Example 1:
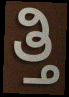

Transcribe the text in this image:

ತ್ತಿ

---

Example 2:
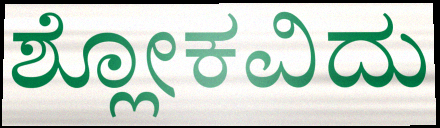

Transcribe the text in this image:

ಶ್ಲೋಕವಿದು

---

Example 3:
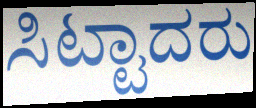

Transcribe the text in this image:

ಸಿಟ್ಟಾದರು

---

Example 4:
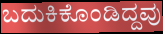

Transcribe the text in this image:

ಬದುಕಿಕೊಂಡಿದ್ದವು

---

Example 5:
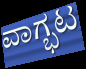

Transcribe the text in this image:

ವಾಗ್ಭಟ